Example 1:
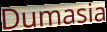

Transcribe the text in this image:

Dumasia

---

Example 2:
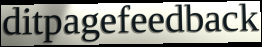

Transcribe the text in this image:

ditpagefeedback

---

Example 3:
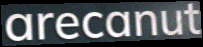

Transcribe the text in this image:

arecanut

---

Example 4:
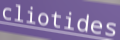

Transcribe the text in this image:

cliotides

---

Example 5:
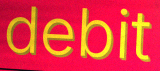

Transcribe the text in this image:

debit